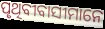
ପୃଥିବୀବାସୀମାନେ